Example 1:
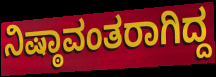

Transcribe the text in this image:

ನಿಷ್ಠಾವಂತರಾಗಿದ್ದ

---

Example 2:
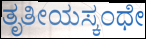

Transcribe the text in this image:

ತೃತೀಯಸ್ಕಂಧೇ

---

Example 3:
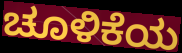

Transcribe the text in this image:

ಚೂಳಿಕೆಯ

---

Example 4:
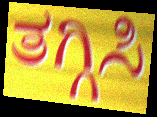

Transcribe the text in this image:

ತಗ್ಗಿಸಿ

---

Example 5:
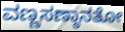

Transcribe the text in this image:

ವಣ್ಣಸಣ್ಠಾನತೋ